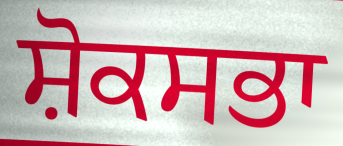
ਸ਼ੋਕਸਭਾ